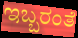
ಇಬ್ಬರಂತೆ